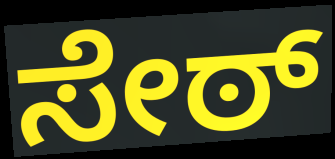
ಸೇಠ್